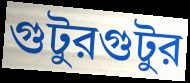
গুটুরগুটুর